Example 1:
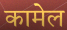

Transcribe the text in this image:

कामेल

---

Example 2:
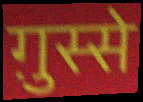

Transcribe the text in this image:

ग़ुस्से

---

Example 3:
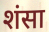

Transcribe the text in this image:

शंसा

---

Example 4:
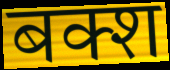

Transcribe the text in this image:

बक्श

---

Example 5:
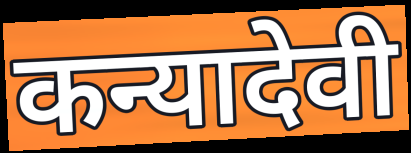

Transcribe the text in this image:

कन्यादेवी